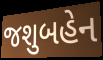
જશુબહેન